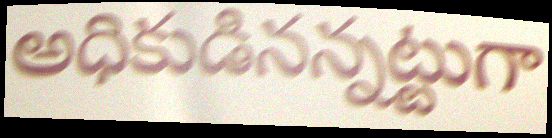
అధికుడినన్నట్టుగా